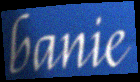
banie